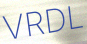
VRDL